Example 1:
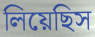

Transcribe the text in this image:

লিয়েছিস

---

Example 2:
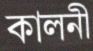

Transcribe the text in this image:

কালনী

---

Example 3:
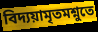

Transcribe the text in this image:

বিদ্যয়ামৃতমশ্নুতে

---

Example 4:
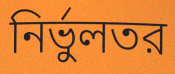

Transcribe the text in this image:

নির্ভুলতর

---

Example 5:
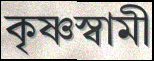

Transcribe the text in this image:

কৃষ্ণস্বামী